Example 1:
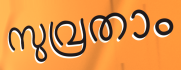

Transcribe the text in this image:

സുവ്രതാം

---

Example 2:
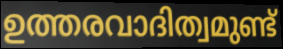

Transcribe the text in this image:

ഉത്തരവാദിത്വമുണ്ട്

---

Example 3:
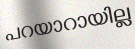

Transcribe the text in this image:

പറയാറായില്ല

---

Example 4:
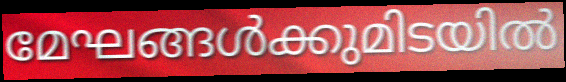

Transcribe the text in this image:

മേഘങ്ങൾക്കുമിടയിൽ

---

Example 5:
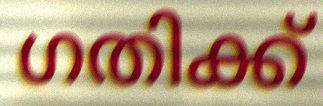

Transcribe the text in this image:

ഗതിക്ക്